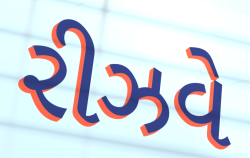
રીઝવે